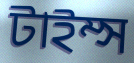
টাইম্স